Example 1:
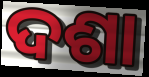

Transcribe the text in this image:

ଦଶା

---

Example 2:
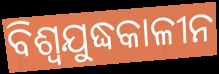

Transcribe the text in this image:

ବିଶ୍ୱଯୁଦ୍ଧକାଳୀନ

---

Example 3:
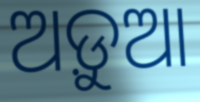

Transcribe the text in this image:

ଅଡ଼ୁଆ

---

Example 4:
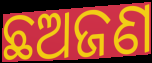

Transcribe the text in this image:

ଛଅଜଣ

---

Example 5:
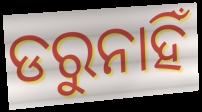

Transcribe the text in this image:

ଡରୁନାହିଁ